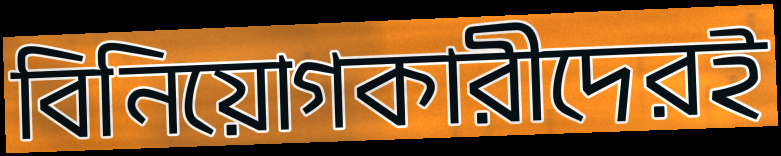
বিনিয়োগকারীদেরই